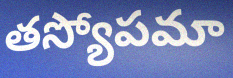
తస్యోపమా